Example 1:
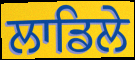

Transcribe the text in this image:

ਲਾਡਿਲੇ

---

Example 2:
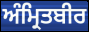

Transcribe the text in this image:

ਅੰਮ੍ਰਿਤਬੀਰ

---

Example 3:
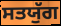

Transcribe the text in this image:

ਸਤਯੁੱਗ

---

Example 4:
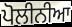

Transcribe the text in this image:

ਪੋਲੀਨੀਆ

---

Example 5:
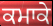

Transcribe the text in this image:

ਕਮਾਕੇ